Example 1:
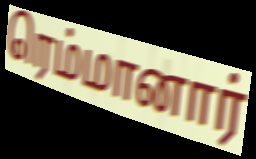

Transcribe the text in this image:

ரெம்மானார்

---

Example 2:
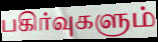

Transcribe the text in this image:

பகிர்வுகளும்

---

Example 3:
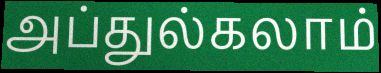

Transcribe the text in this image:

அப்துல்கலாம்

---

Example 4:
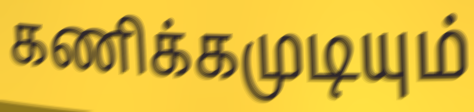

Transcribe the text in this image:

கணிக்கமுடியும்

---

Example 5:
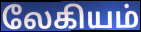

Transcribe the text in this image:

லேகியம்